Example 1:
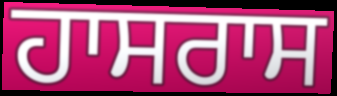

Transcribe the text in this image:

ਹਾਸਰਾਸ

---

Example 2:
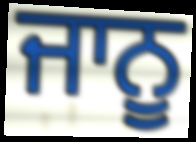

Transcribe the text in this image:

ਜਾਨੂ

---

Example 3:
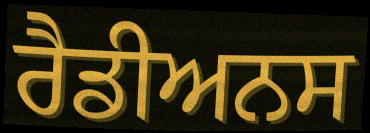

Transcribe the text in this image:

ਰੈਡੀਅਨਸ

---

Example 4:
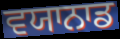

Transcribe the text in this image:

ਵਯਾਨਾਡ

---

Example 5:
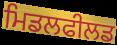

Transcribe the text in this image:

ਮਿਡਲਫੀਲਡ